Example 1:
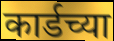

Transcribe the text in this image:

कार्डच्या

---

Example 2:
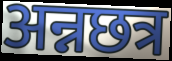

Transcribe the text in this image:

अन्नछत्र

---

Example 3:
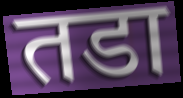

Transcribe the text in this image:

तडा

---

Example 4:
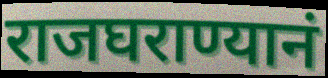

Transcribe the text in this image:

राजघराण्यानं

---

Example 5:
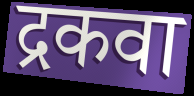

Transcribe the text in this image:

द्रकवा